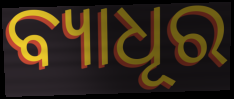
ବ୍ୟାଧୂର